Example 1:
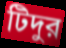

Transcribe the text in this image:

টিদুর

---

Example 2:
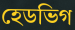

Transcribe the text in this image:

হেডভিগ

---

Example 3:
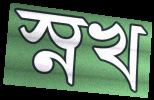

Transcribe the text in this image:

স্নখ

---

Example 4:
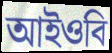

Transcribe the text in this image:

আইওবি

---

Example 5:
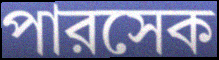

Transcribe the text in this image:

পারসেক